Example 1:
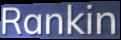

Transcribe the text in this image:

Rankin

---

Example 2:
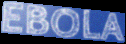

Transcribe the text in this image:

EBOLA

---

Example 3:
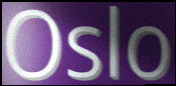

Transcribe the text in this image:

Oslo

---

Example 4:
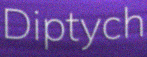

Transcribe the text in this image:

Diptych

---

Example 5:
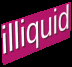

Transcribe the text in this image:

illiquid